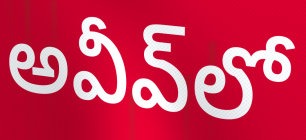
అవీవ్‌లో